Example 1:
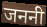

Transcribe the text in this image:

जननी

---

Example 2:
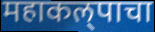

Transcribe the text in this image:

महाकल्पाचा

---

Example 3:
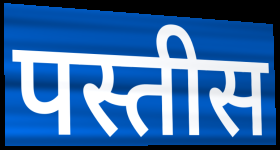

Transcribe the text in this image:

पस्तीस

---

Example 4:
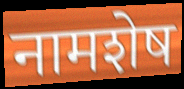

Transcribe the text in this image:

नामशेष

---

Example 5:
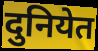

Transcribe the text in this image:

दुनियेत